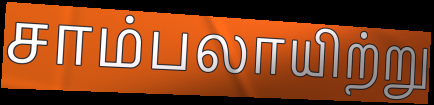
சாம்பலாயிற்று